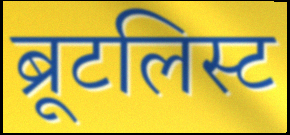
ब्रूटलिस्ट